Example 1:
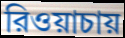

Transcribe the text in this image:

রিওয়াচায়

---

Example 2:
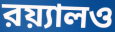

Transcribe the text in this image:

রয়্যালও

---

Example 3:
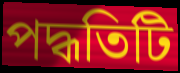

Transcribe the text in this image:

পদ্ধতিটি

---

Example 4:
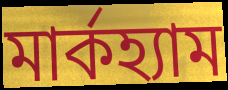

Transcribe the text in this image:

মার্কহ্যাম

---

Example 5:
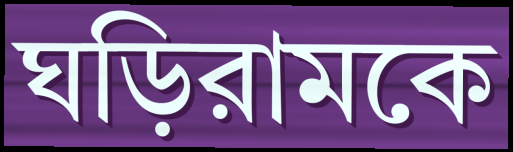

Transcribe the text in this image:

ঘড়িরামকে